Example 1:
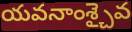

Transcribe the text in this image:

యవనాంశ్చైవ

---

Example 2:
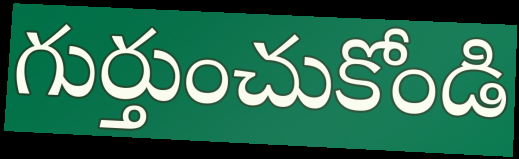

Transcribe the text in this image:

గుర్తుంచుకోండి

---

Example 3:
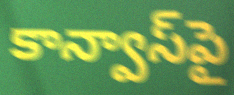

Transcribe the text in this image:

కాన్వాస్‌పై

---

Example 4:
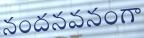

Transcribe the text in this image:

నందనవనంగా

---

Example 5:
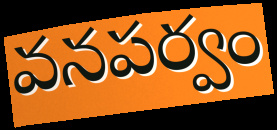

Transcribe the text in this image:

వనపర్వం